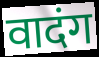
वादंग